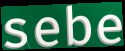
sebe